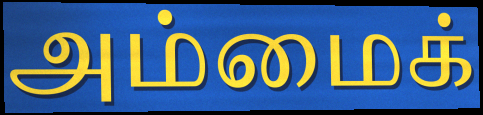
அம்மைக்